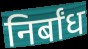
निर्बांध